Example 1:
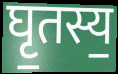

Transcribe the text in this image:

घृ॒तस्य॒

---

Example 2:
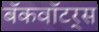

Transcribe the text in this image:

बॅकवॉटर्स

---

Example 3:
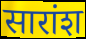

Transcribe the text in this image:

सारांश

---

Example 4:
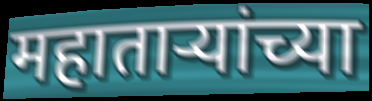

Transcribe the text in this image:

महाताऱ्यांच्या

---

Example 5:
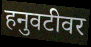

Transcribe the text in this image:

हनुवटीवर